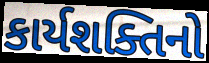
કાર્યશક્તિનો